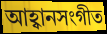
আহ্বানসংগীত